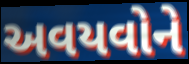
અવયવોને